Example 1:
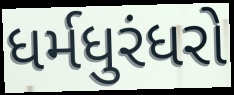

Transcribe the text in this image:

ધર્મધુરંધરો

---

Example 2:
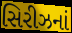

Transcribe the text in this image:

સિરીઝનાં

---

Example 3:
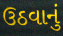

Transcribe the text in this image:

ઉઠવાનું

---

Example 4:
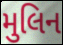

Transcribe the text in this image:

મુલિન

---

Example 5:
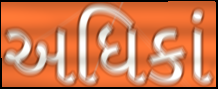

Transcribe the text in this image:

અધિકાં